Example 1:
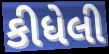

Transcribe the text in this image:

કીધેલી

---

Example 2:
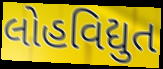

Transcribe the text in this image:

લોહવિદ્યુત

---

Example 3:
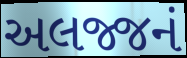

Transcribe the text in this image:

અલજ્જનં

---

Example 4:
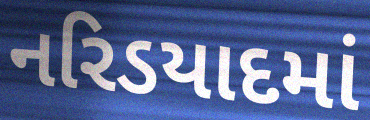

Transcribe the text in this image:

નરિડયાદમાં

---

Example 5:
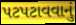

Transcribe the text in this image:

પટપટાવવાનું